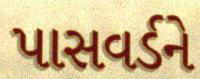
પાસવર્ડને